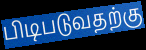
பிடிபடுவதற்கு